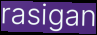
rasigan